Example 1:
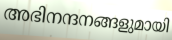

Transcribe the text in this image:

അഭിനന്ദനങ്ങളുമായി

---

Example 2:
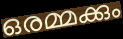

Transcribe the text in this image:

ഒരമ്മക്കും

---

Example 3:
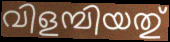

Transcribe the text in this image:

വിളമ്പിയതു്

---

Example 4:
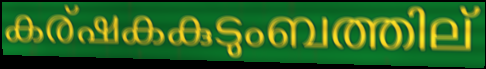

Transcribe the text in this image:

കര്ഷകകുടുംബത്തില്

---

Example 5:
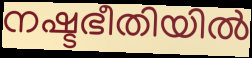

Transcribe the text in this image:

നഷ്ടഭീതിയിൽ